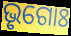
ଭୃଗୋଃ